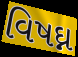
વિષઘ્ન